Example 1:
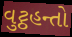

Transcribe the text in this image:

વુટ્ઠહન્તો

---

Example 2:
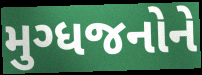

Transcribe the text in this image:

મુગ્ધજનોને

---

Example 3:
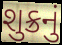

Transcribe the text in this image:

શુક્રનું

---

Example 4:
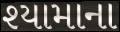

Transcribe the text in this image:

શ્યામાના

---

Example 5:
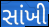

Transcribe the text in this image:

સાંખી